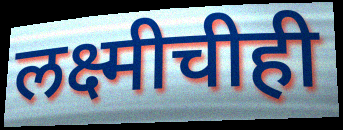
लक्ष्मीचीही